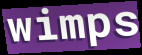
wimps